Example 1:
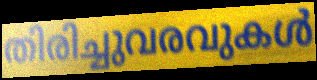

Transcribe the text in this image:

തിരിച്ചുവരവുകൾ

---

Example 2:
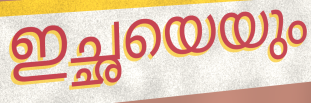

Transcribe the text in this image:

ഇച്ഛയെയും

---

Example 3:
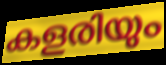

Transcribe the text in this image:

കളരിയും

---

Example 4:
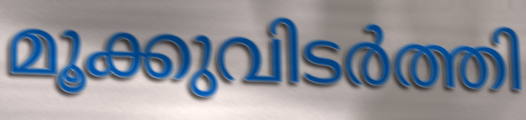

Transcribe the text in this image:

മൂക്കുവിടർത്തി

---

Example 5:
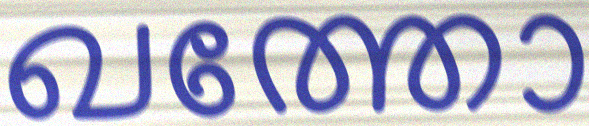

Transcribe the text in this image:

ഖത്തോ